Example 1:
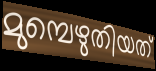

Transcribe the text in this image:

മുമ്പെഴുതിയത്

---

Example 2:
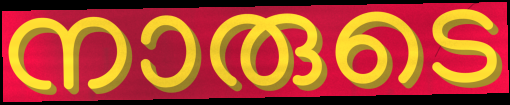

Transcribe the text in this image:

നാരുടെ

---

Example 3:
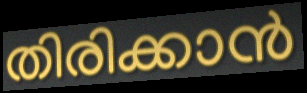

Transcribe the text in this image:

തിരിക്കാൻ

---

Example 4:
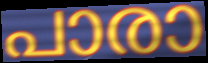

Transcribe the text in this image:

പാരാ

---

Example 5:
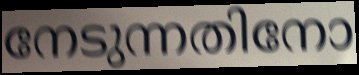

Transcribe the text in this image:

നേടുന്നതിനോ